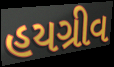
હયગ્રીવ